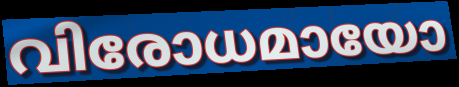
വിരോധമായോ